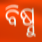
ବିଷ୍ନୁ